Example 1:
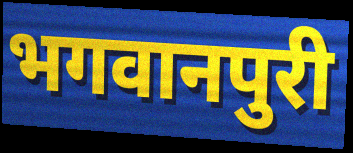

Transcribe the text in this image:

भगवानपुरी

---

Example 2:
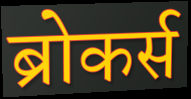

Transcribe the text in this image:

ब्रोकर्स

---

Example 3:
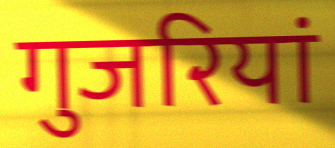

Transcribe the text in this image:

गुजरियां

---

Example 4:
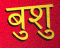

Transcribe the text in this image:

बुशु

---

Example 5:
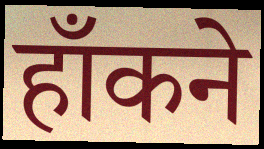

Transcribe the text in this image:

हाँकने